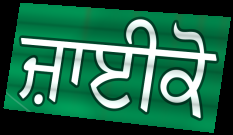
ਜ਼ਾਈਕੋ